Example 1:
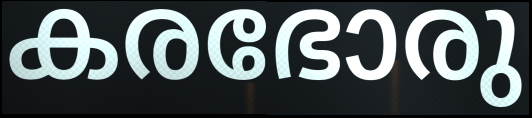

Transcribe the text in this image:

കരഭോരു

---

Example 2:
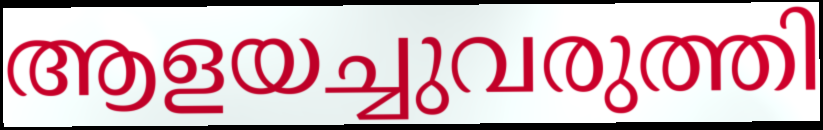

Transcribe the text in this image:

ആളയച്ചുവരുത്തി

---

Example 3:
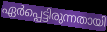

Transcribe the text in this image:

ഏർപ്പെട്ടിരുന്നതായി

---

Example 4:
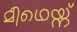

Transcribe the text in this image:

മീഥെയ്ന്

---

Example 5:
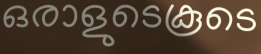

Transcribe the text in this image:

ഒരാളുടെകൂടെ